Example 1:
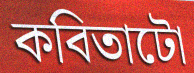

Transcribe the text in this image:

কবিতাটো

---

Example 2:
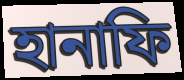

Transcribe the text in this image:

হানাফি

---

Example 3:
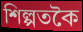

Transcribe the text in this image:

শিল্পতকৈ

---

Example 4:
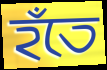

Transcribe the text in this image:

হঁতে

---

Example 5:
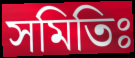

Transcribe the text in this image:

সমিতিঃ